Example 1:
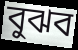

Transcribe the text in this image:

বুঝব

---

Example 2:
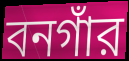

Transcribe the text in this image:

বনগাঁর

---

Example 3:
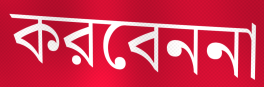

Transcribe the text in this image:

করবেননা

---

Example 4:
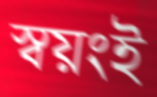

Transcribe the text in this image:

স্বয়ংই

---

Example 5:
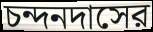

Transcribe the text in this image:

চন্দনদাসের